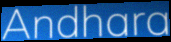
Andhara